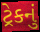
ટ્રેકનું